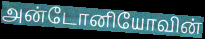
அன்டோனியோவின்